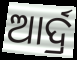
ଆର୍ଦ୍ର